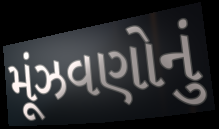
મૂંઝવણોનું